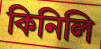
কিনিলি